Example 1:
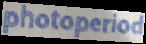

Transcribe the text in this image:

photoperiod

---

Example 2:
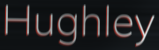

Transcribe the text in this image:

Hughley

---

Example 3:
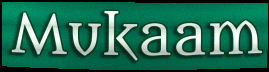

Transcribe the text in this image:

Mukaam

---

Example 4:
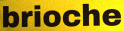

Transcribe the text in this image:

brioche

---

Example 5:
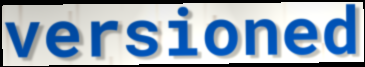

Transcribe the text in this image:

versioned